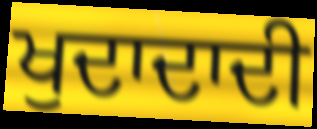
ਖੁਦਾਦਾਦੀ